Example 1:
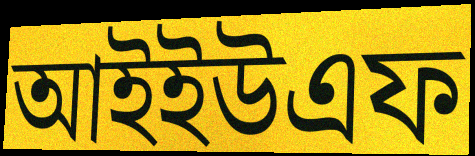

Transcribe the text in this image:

আইইউএফ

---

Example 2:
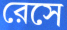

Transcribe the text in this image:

রেসে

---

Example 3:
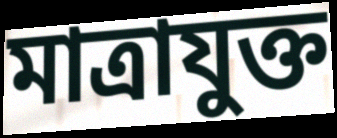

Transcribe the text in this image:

মাত্রাযুক্ত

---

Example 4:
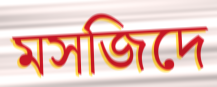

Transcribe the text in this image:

মসজিদে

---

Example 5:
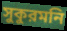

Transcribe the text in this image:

সুকুরমনি